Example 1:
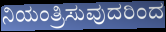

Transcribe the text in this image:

ನಿಯಂತ್ರಿಸುವುದರಿಂದ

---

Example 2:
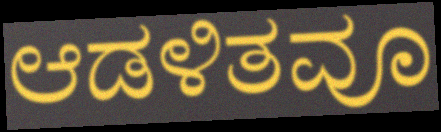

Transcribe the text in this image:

ಆಡಳಿತವೂ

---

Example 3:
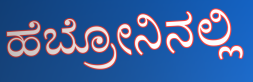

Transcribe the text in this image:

ಹೆಬ್ರೋನಿನಲ್ಲಿ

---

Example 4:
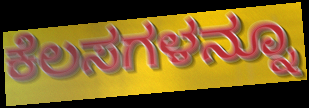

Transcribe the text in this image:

ಕೆಲಸಗಳನ್ನೂ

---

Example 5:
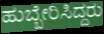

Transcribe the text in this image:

ಹುಬ್ಬೇರಿಸಿದ್ದರು